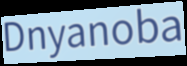
Dnyanoba